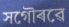
সগৌৰৱে